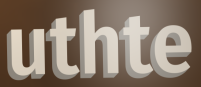
uthte